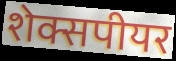
शेक्सपीयर